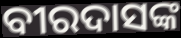
ବୀରଦାସଙ୍କ